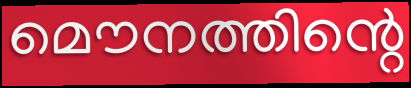
മൌനത്തിന്റെ